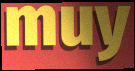
muy